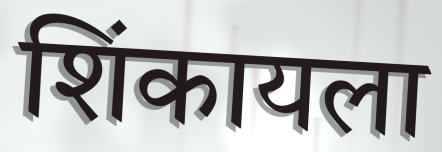
शिंकायला